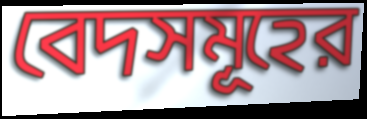
বেদসমূহের